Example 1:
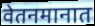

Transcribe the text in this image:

वेतनमानात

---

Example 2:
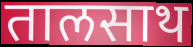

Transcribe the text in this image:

तालसाथ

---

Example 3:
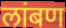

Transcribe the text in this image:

लांबण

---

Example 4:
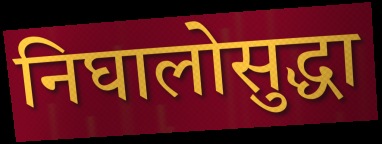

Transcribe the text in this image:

निघालोसुद्धा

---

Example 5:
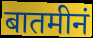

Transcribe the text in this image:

बातमीनं